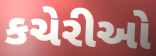
કચેરીઓ